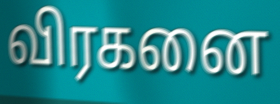
விரகனை